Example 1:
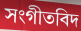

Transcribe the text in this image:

সংগীতবিদ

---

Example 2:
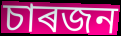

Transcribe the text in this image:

চাৰজন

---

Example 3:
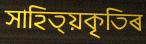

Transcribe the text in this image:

সাহিত্য়কৃতিৰ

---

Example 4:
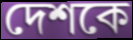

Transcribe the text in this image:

দেশকে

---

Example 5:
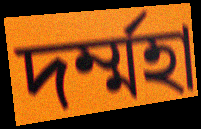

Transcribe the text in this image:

দৰ্ম্মহা